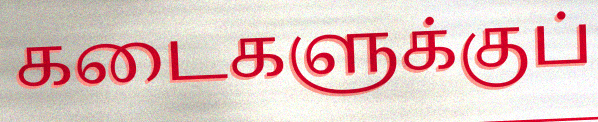
கடைகளுக்குப்